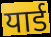
यार्ड